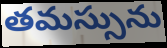
తమస్సును